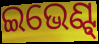
ଇଭେଣ୍ଟ୍